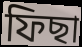
ফিছা